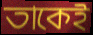
তাকেই